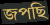
জপছি